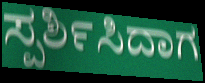
ಸ್ಪರ್ಶಿಸಿದಾಗ